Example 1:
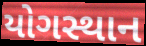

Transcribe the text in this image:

યોગસ્થાન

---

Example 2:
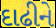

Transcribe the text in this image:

દાઢીને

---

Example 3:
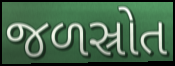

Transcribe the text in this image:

જળસ્રોત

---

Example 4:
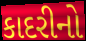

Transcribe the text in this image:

કાદરીનો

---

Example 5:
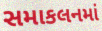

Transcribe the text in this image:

સમાકલનમાં